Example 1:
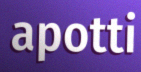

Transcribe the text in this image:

apotti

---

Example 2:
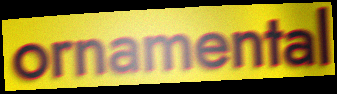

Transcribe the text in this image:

ornamental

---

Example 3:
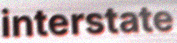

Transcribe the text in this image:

interstate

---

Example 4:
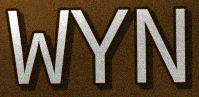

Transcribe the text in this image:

WYN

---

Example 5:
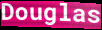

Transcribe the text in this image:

Douglas